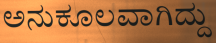
ಅನುಕೂಲವಾಗಿದ್ದು